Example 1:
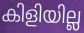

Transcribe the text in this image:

കിളിയില്ല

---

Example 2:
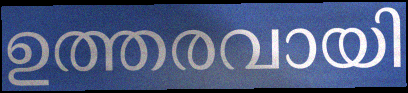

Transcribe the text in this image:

ഉത്തരവായി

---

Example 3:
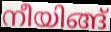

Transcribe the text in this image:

നീയിങ്ങ്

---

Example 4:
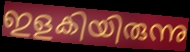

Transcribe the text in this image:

ഇളകിയിരുന്നു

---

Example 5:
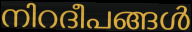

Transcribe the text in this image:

നിറദീപങ്ങൾ